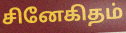
சினேகிதம்